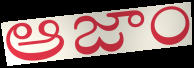
ఆజాం